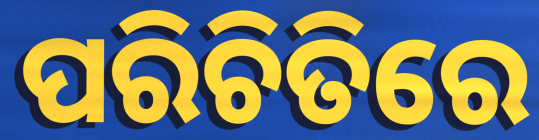
ପରିଚିତିରେ